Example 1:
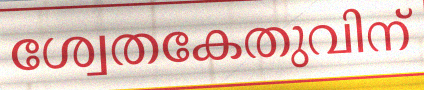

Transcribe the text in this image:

ശ്വേതകേതുവിന്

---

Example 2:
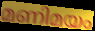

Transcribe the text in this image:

മണിമയം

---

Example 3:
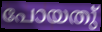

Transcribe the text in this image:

പോയതു്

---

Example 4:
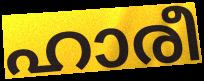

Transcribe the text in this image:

ഹാരീ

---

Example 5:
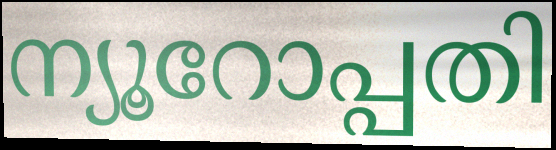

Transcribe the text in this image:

ന്യൂറോപ്പതി